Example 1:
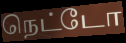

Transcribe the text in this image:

நெட்டோ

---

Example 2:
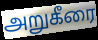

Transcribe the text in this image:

அறுகீரை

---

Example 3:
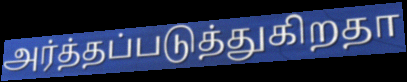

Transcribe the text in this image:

அர்த்தப்படுத்துகிறதா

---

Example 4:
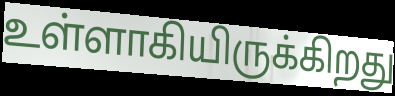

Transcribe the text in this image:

உள்ளாகியிருக்கிறது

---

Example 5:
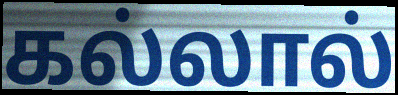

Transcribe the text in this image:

கல்லால்